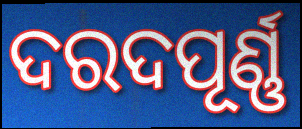
ଦରଦପୂର୍ଣ୍ଣ